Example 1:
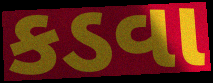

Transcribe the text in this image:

કડવા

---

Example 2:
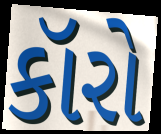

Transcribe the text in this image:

કૉરો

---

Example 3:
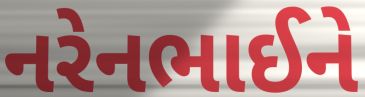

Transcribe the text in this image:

નરેનભાઈને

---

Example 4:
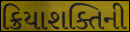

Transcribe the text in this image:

ક્રિયાશક્તિની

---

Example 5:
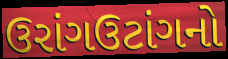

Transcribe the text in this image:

ઉરાંગઉટાંગનો